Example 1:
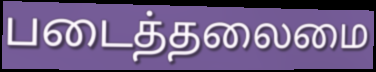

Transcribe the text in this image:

படைத்தலைமை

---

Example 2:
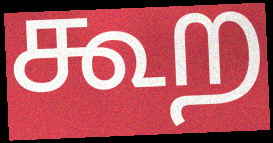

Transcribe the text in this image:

கூற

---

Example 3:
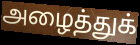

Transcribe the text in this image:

அழைத்துக்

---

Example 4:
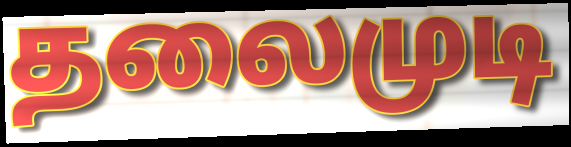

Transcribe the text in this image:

தலைமுடி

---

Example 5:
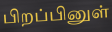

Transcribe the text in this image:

பிறப்பினுள்